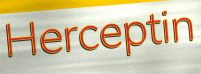
Herceptin